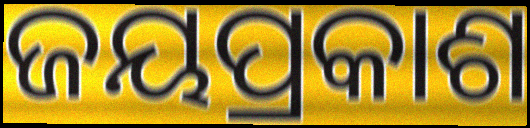
ଜୟପ୍ରକାଶ